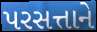
પરસત્તાને